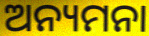
ଅନ୍ୟମନା